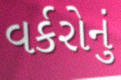
વર્કરોનું